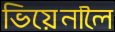
ভিয়েনালৈ